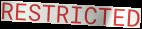
RESTRICTED